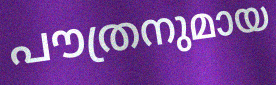
പൗത്രനുമായ